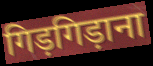
गिड़गिड़ाना